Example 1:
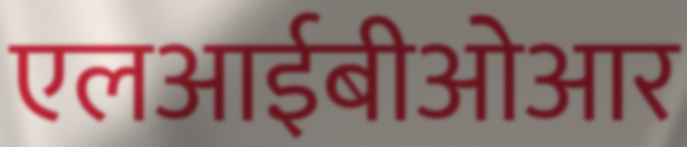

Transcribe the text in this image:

एलआईबीओआर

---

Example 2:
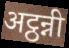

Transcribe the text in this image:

अट्ठन्नी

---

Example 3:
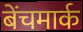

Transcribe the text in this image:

बेंचमार्क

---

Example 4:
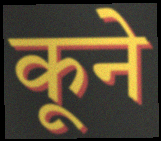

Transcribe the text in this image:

कूने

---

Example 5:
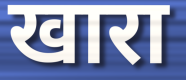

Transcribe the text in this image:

खारा